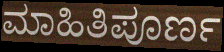
ಮಾಹಿತಿಪೂರ್ಣ